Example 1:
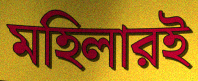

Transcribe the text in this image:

মহিলারই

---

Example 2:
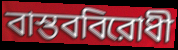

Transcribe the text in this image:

বাস্তববিরোধী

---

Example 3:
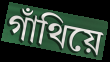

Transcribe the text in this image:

গাঁথিয়ে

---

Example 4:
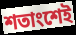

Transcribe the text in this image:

শতাংশেই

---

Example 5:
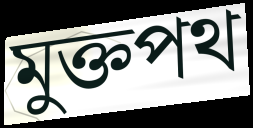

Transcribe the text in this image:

মুক্তপথ